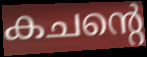
കചന്റെ